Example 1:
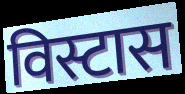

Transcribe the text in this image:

विस्टास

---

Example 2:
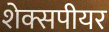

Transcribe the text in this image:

शेक्सपीयर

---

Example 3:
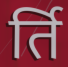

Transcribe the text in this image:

र्ति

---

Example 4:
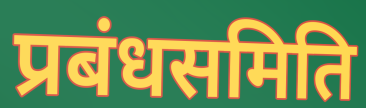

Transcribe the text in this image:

प्रबंधसमिति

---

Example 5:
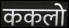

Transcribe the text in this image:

ककलो